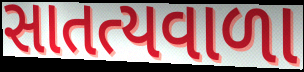
સાતત્યવાળા